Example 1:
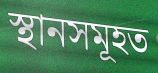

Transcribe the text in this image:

স্থানসমূহত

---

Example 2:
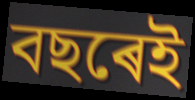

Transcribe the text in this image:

বছৰেই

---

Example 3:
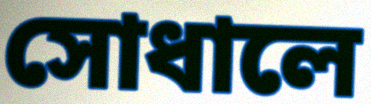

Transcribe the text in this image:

সোধালে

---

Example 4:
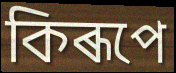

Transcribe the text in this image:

কিৰূপে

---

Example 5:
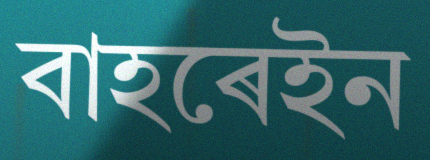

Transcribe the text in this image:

বাহৰেইন